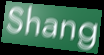
Shang